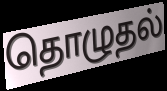
தொழுதல்